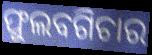
ଫୁଲବଗିଚାର